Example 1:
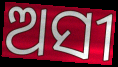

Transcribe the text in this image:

ଅସୀ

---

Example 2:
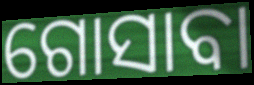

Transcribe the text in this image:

ଗୋସାବା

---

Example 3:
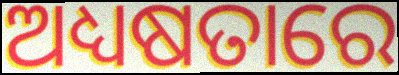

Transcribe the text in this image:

ଅଧ୍ୟଷତାରେ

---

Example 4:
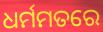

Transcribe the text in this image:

ଧର୍ମମତରେ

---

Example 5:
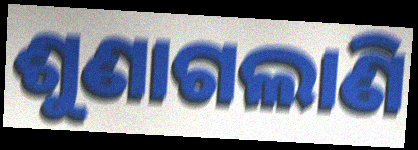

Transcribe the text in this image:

ଶୁଣାଗଲାଣି